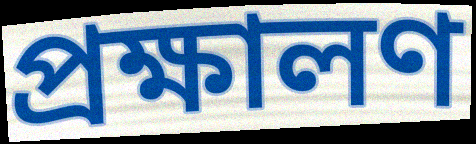
প্রক্ষালণ